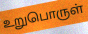
உறுபொருள்